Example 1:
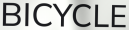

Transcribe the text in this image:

BICYCLE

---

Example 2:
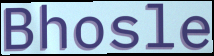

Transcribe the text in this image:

Bhosle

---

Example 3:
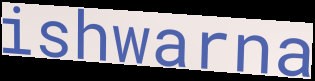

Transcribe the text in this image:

ishwarna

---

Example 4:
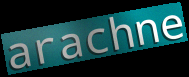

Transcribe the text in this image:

arachne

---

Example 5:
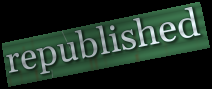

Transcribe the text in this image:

republished